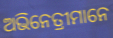
ଅଭିନେତ୍ରୀମାନେ